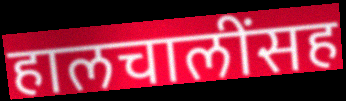
हालचालींसह